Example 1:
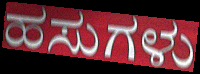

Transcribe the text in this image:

ಹಸುಗಳು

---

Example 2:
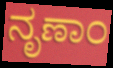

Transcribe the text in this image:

ನೃಣಾಂ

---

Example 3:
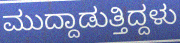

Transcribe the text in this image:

ಮುದ್ದಾಡುತ್ತಿದ್ದಳು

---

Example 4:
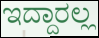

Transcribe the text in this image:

ಇದ್ದಾರಲ್ಲ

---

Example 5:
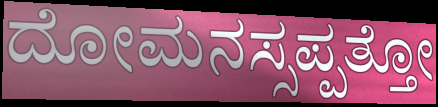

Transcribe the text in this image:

ದೋಮನಸ್ಸಪ್ಪತ್ತೋ